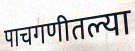
पाचगणीतल्या